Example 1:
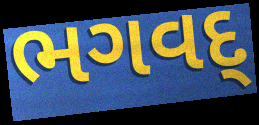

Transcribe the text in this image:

ભગવદ્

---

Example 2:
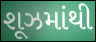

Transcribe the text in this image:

શૂઝમાંથી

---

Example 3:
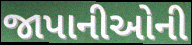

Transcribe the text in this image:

જાપાનીઓની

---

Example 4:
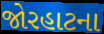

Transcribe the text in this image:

જોરહાટના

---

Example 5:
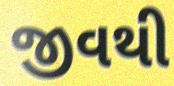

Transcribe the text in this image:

જીવથી